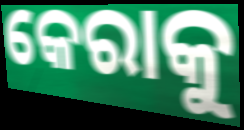
କେରାକୁ